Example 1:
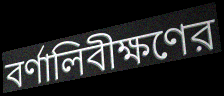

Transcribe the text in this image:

বর্ণালিবীক্ষণের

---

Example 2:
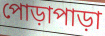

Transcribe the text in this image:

পোড়াপাড়া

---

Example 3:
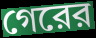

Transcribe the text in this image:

গেরের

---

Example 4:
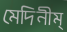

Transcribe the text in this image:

মেদিনীম্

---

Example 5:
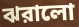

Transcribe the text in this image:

ঝরালো